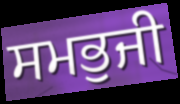
ਸਮਭੁਜੀ